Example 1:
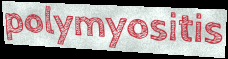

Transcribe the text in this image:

polymyositis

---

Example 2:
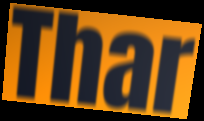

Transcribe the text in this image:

Thar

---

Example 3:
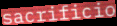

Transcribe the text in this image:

sacrificio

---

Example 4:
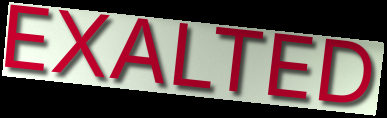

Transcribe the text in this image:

EXALTED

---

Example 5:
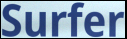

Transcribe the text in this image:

Surfer